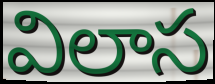
విలాస